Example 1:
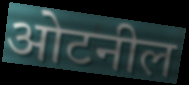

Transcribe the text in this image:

ओटनील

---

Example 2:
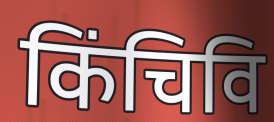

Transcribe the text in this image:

किंचिवि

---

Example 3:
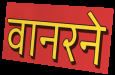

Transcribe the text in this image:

वानरने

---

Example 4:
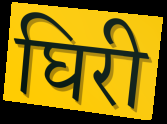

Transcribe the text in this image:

घिरी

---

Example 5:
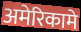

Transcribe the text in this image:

अमेरिकामे